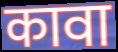
कावा